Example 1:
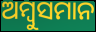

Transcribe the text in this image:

ଅମ୍ବୁସମାନ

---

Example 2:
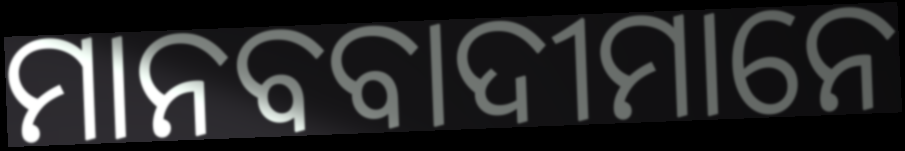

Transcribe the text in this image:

ମାନବବାଦୀମାନେ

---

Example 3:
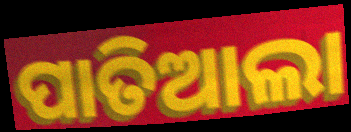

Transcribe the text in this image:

ପାତିଆଲା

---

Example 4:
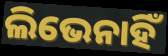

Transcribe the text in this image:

ଲିଭେନାହିଁ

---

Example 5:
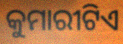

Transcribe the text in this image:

କୁମାରୀଟିଏ